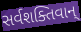
સર્વશક્તિવાન્